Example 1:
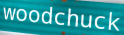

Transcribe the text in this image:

woodchuck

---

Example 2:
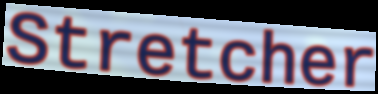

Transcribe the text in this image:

Stretcher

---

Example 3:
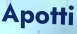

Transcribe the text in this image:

Apotti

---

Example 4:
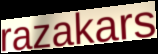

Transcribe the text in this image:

razakars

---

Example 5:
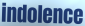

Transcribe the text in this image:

indolence